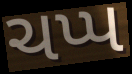
ચપ્પ